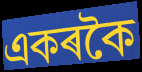
একৰকৈ